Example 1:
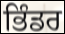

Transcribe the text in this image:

ਭਿੰਡਰ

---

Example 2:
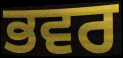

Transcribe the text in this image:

ਭਵਰ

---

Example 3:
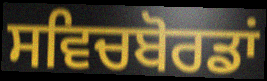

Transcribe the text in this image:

ਸਵਿਚਬੋਰਡਾਂ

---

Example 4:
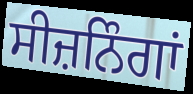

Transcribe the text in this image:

ਸੀਜ਼ਨਿੰਗਾਂ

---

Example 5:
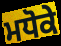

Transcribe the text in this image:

ਮਧੋਕੇ